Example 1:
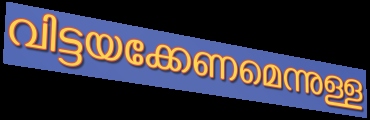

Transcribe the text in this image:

വിട്ടയക്കേണമെന്നുള്ള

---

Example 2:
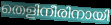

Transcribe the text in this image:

തെളിനീരിനായി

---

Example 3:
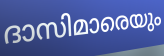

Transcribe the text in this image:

ദാസിമാരെയും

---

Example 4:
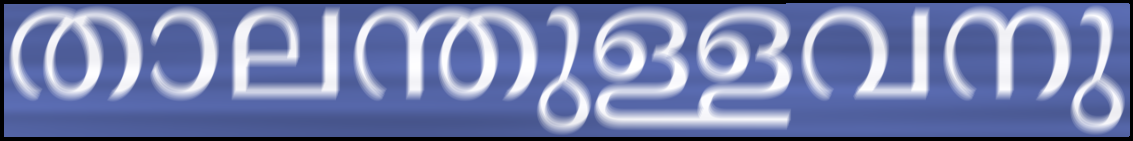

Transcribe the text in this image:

താലന്തുള്ളവനു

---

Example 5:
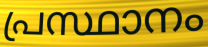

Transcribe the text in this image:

പ്രസ്ഥാനം